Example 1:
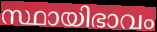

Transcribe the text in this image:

സ്ഥായിഭാവം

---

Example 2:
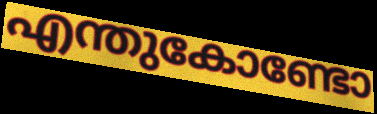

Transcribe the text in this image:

എന്തുകോണ്ടോ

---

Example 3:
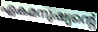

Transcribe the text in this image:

ഏകമനുഷ്യന്റെ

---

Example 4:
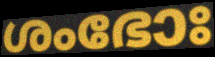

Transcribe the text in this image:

ശംഭോഃ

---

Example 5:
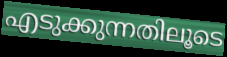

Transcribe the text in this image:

എടുക്കുന്നതിലൂടെ